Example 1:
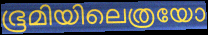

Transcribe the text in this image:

ഭൂമിയിലെത്രയോ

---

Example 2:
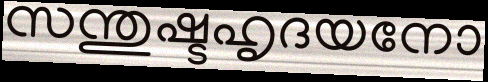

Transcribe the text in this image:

സന്തുഷ്ടഹൃദയനോ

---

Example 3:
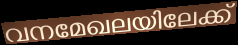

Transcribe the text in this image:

വനമേഖലയിലേക്ക്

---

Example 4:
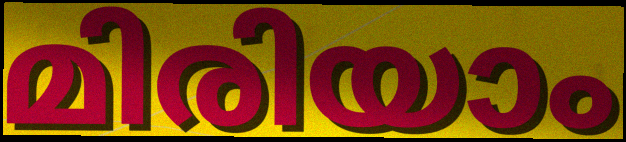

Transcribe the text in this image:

മിരിയാം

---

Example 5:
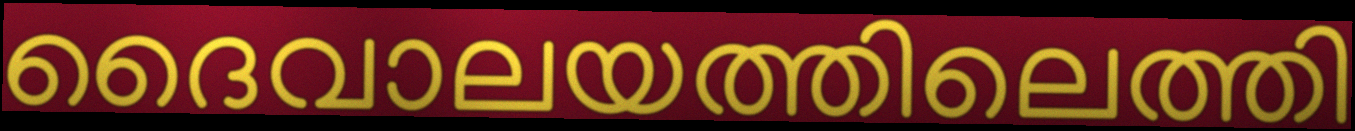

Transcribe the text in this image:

ദൈവാലയത്തിലെത്തി